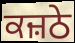
ਕਜ਼ਠੇ